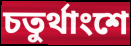
চতুর্থাংশে